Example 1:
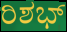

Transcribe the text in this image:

ರಿಶಭ್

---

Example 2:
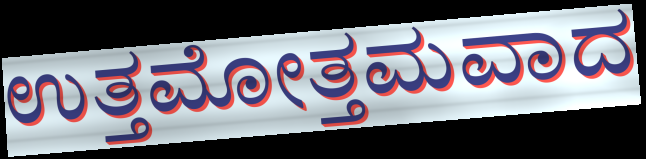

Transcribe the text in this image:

ಉತ್ತಮೋತ್ತಮವಾದ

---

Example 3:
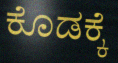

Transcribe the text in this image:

ಕೊಡಕ್ಕೆ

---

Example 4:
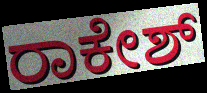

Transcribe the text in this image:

ರಾಕೇಶ್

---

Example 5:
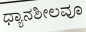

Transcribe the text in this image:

ಧ್ಯಾನಶೀಲವೂ